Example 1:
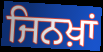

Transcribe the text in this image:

ਜਿਨਖ਼ਾਂ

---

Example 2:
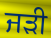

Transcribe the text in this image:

ਜੜੀ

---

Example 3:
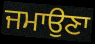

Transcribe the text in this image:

ਜਮਾਉਣਾ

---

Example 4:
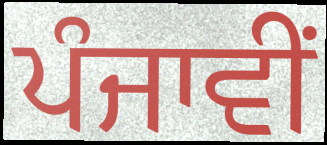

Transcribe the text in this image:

ਪੰਜਾਵੀਂ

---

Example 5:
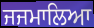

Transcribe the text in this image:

ਜਜਮਾਲਿਆ